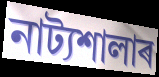
নাট্যশালাৰ